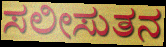
ಸಲೀಸುತನ